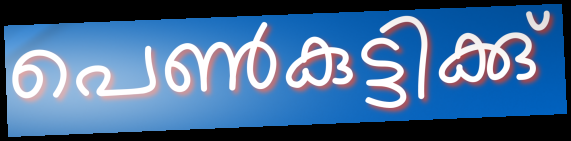
പെൺകുട്ടിക്കു്